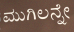
ಮುಗಿಲನ್ನೇ